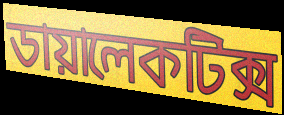
ডায়ালেকটিক্স